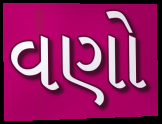
વણો